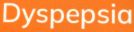
Dyspepsia